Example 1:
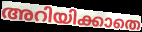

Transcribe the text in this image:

അറിയിക്കാതെ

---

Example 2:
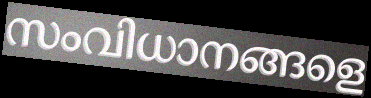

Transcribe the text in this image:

സംവിധാനങ്ങളെ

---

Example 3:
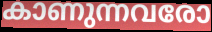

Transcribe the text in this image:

കാണുന്നവരോ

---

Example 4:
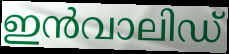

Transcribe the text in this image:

ഇൻവാലിഡ്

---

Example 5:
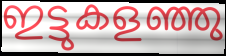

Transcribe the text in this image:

ഇട്ടുകളഞ്ഞു